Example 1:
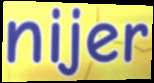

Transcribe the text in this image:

nijer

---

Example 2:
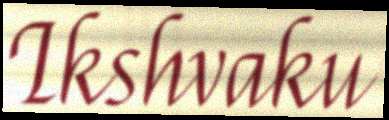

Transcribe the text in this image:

Ikshvaku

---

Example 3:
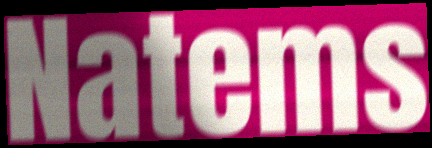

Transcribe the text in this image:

Natems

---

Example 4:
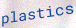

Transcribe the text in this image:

plastics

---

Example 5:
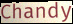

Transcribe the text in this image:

Chandy